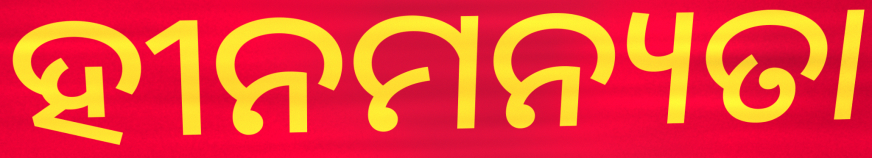
ହୀନମନ୍ୟତା